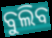
ବୁଲିବ